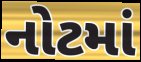
નોટમાં